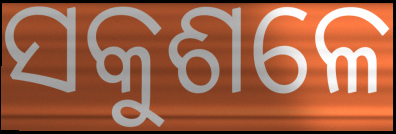
ସକୁଶଳେ